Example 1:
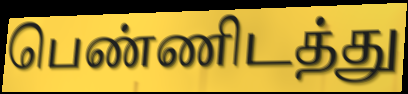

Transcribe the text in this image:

பெண்ணிடத்து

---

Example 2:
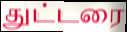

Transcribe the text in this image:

துட்டரை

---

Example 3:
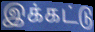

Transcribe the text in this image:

இக்கட்டு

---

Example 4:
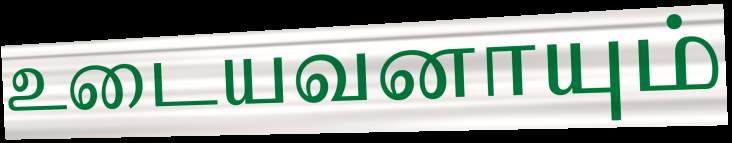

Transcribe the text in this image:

உடையவனாயும்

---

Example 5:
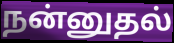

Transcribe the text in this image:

நன்னுதல்